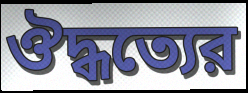
ঔদ্ধত্যের